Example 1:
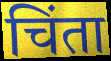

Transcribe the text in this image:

चिंता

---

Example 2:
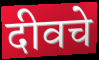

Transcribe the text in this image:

दीवचे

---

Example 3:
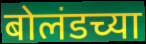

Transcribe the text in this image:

बोलंडच्या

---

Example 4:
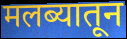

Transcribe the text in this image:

मलब्यातून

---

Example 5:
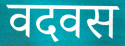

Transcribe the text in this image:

वदवस